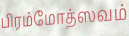
பிரம்மோத்ஸவம்